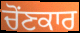
ਚੋਂਣਕਾਰ